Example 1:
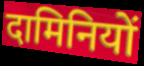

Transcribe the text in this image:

दामिनियों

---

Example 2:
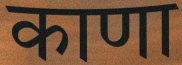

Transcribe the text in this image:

काणा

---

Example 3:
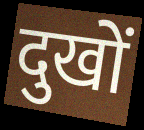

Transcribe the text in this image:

दुखों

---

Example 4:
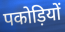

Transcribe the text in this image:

पकोड़ियों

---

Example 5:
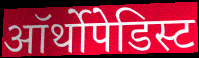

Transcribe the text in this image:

ऑर्थोपेडिस्ट